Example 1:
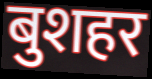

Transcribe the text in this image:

बुशहर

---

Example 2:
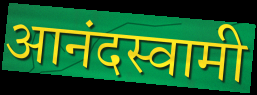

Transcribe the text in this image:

आनंदस्वामी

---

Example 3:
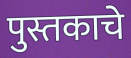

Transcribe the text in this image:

पुस्तकाचे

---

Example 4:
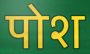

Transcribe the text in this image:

पोश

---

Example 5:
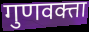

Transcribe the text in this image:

गुणवक्ता